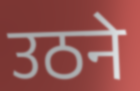
उठने